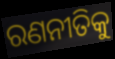
ରଣନୀତିକୁ